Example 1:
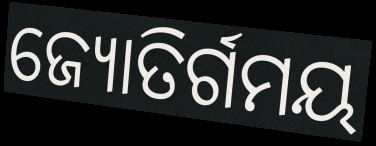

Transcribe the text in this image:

ଜ୍ୟୋତିର୍ଗମୟ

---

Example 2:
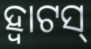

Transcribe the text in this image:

ହ୍ୱାଟସ୍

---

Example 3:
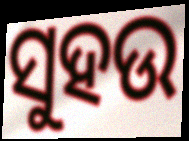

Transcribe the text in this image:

ସୁହଉ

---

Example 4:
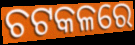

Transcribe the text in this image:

ଚଟକଳରେ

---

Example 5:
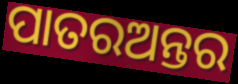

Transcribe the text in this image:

ପାତରଅନ୍ତର